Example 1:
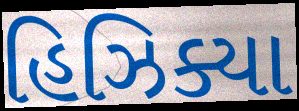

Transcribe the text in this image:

હિઝિક્યા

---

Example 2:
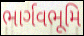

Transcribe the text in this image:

ભાર્ગવભૂમિ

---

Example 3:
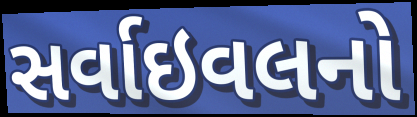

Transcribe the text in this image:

સર્વાઇવલનો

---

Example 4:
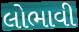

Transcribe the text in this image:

લોભાવી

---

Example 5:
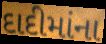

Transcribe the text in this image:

દાદીમાંના